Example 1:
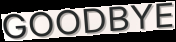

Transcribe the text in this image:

GOODBYE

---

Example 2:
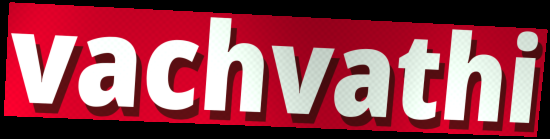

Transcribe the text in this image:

vachvathi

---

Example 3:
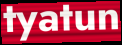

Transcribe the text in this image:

tyatun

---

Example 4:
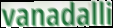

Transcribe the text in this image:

vanadalli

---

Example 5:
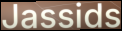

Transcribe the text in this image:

Jassids